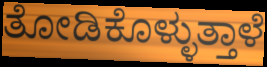
ತೋಡಿಕೊಳ್ಳುತ್ತಾಳೆ